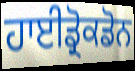
ਹਾਈਡ੍ਰੋਕਡੋਨ